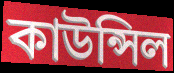
কাউন্সিল